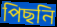
পিছনি